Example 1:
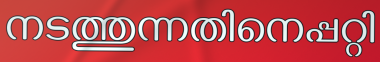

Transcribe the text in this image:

നടത്തുന്നതിനെപ്പറ്റി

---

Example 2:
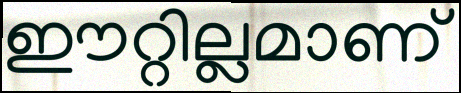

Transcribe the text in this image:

ഈറ്റില്ലമാണ്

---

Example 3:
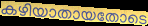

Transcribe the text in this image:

കഴിയാതായതോടെ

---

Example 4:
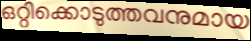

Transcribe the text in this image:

ഒറ്റിക്കൊടുത്തവനുമായ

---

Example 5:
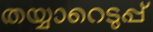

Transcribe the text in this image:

തയ്യാറെടുപ്പ്